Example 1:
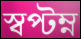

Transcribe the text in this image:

স্বপ্টম্ন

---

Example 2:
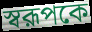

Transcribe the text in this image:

স্বরূপকে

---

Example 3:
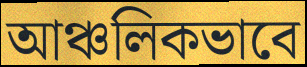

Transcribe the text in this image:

আঞ্চলিকভাবে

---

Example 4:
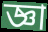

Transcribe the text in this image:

জ্ঞা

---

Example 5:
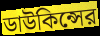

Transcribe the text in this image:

ডাউকিন্সের